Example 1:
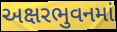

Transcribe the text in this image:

અક્ષરભુવનમાં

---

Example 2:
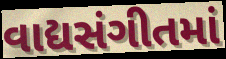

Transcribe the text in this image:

વાદ્યસંગીતમાં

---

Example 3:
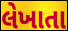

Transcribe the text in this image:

લેખાતા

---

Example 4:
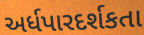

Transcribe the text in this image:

અર્ધપારદર્શકતા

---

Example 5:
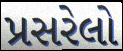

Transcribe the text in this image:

પ્રસરેલો